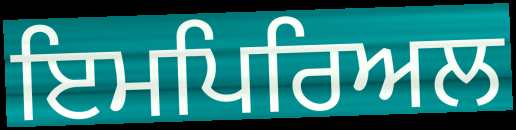
ਇਮਪਿਰਿਅਲ